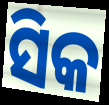
ସିକ